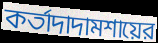
কর্তাদাদামশায়ের